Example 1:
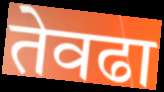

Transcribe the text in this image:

तेवढा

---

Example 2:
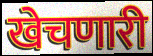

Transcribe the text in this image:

खेचणारी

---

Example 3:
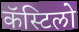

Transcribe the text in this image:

कॅस्टिलो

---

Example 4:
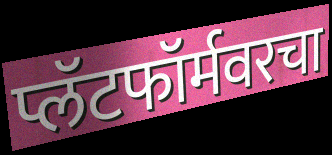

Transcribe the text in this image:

प्लॅटफॉर्मवरचा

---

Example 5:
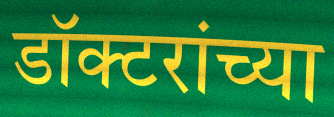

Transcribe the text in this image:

डॉक्‍टरांच्या